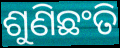
ଶୁଣିଛଂତି